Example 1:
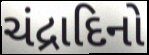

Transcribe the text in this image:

ચંદ્રાદિનો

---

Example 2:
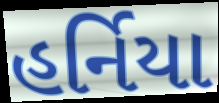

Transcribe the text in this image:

હર્નિયા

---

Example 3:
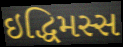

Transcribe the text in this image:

ઇદ્ધિમસ્સ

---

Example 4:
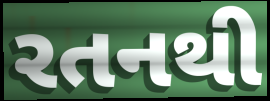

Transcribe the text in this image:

રતનથી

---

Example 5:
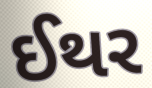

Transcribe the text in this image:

ઈથર